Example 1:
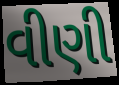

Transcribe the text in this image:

વીણી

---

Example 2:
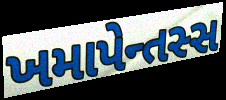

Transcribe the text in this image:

ખમાપેન્તસ્સ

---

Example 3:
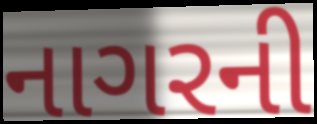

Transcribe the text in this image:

નાગરની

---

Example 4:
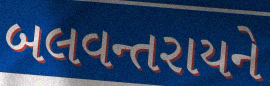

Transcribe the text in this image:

બલવન્તરાયને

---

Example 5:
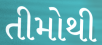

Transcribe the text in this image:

તીમોથી